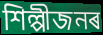
শিল্পীজনৰ